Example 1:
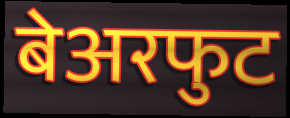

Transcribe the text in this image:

बेअरफुट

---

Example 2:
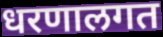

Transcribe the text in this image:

धरणालगत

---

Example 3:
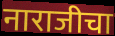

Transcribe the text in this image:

नाराजीचा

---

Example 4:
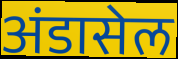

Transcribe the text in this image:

अंडासेल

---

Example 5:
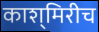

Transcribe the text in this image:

काश्मिरीच